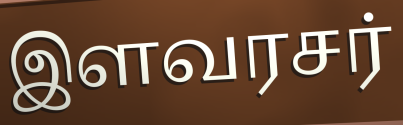
இளவரசர்